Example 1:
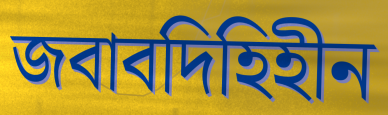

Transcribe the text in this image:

জবাবদিহিহীন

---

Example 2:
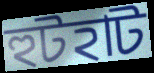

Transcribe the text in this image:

হুটহাট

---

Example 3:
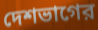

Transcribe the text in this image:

দেশভাগের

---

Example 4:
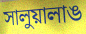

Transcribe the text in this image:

সালুয়ালাঙ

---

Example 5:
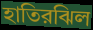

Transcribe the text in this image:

হাতিরঝিল